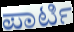
ಪಾರ್ಟಿ